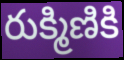
రుక్మిణికి